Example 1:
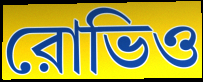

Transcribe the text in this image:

রোভিও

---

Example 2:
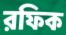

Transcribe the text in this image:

রফিক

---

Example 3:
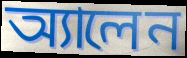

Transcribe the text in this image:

অ্যালেন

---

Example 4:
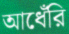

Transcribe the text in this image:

আধেঁরি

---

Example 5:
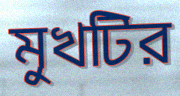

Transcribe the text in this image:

মুখটির